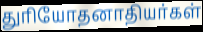
துரியோதனாதியர்கள்